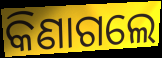
କିଣାଗଲେ